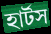
হার্টস